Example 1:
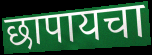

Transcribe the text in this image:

छापायचा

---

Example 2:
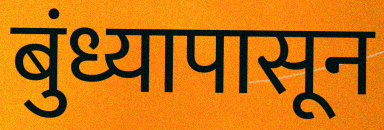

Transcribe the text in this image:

बुंध्यापासून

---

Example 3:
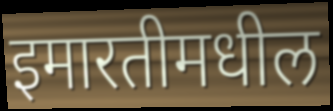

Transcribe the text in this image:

इमारतीमधील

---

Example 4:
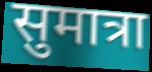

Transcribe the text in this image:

सुमात्रा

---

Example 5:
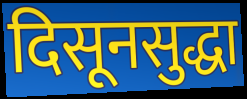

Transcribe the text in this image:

दिसूनसुद्धा